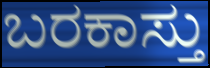
ಬರಕಾಸ್ತು